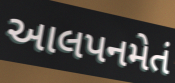
આલપનમેતં